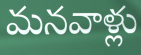
మనవాళ్లు